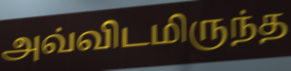
அவ்விடமிருந்த